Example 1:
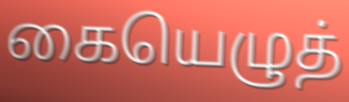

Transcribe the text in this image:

கையெழுத்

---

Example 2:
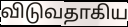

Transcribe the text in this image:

விடுவதாகிய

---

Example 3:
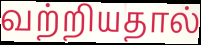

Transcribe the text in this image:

வற்றியதால்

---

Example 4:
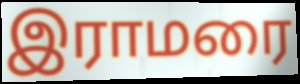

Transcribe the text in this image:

இராமரை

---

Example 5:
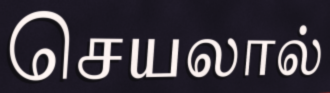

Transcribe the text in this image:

செயலால்